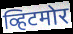
व्हिटमोर